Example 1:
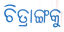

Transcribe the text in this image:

ଚିତ୍ରାଙ୍ଗକୁ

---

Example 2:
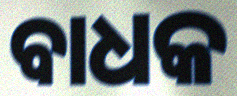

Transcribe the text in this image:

ବାଧକ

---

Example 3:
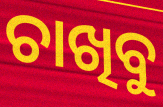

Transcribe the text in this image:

ଚାଖିବୁ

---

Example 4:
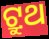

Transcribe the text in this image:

ଟ୍ରୁଥ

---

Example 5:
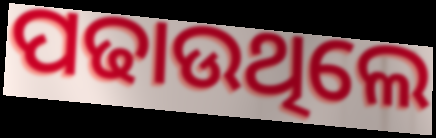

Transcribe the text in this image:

ପଢାଉଥିଲେ